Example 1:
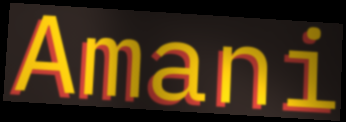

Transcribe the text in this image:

Amani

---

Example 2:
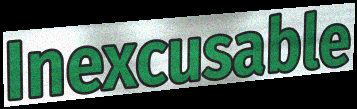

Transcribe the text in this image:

Inexcusable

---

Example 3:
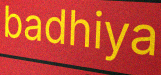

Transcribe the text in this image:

badhiya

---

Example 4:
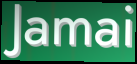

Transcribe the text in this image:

Jamai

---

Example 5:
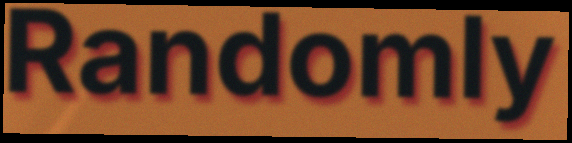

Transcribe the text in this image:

Randomly